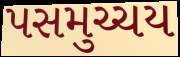
પસમુચ્ચય